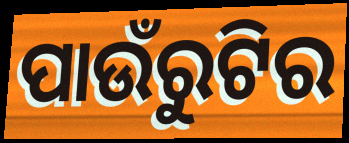
ପାଉଁରୁଟିର